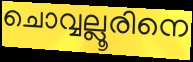
ചൊവ്വല്ലൂരിനെ